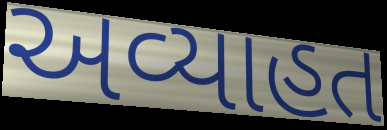
અવ્યાહત